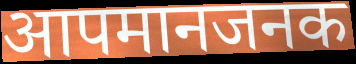
आपमानजनक